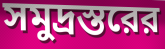
সমুদ্রস্তরের